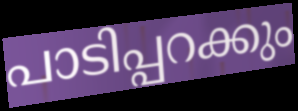
പാടിപ്പറക്കും